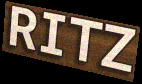
RITZ